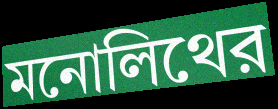
মনোলিথের